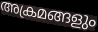
അക്രമങ്ങളും